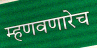
म्हणवणारेच